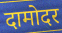
दामोदर